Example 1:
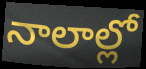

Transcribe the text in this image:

నాలాల్లో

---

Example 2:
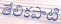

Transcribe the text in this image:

తేలికపాటి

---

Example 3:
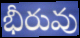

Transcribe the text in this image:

భీరువు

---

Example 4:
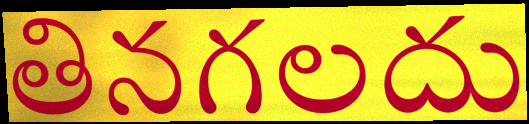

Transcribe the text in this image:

తినగలదు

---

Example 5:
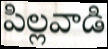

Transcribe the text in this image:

పిల్లవాడి